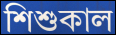
শিশুকাল